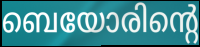
ബെയോരിന്റെ